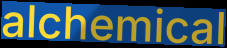
alchemical